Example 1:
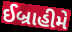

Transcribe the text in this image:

ઈબ્રાહીમે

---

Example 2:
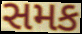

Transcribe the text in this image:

સમક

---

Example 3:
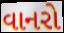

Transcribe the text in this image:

વાનરો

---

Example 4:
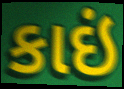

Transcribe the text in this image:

કાઇં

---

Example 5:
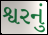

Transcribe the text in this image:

શ્વરનું